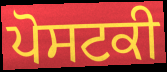
ਪੋਸਟਕੀ